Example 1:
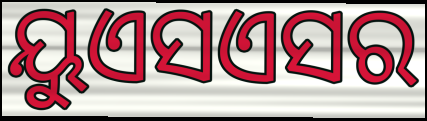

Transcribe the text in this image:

ୟୁଏସଏସର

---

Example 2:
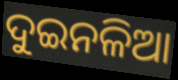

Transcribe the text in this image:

ଦୁଇନଳିଆ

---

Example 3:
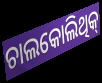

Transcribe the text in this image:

ଚାଲକୋଲିଥିକ୍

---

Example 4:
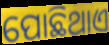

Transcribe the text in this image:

ପୋଛିଥାଏ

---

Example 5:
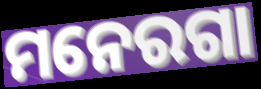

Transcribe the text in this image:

ମନେରଗା